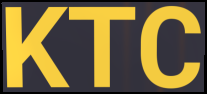
KTC